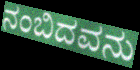
ನಂಬಿದವನು